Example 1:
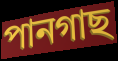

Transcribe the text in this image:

পানগাছ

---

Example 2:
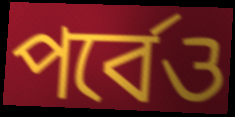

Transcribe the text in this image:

পর্বেও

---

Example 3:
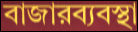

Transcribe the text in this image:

বাজারব্যবস্থা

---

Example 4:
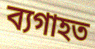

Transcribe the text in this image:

ব্যগাহত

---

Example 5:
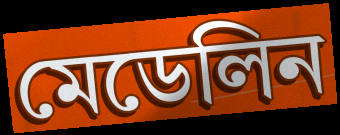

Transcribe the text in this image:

মেডেলিন